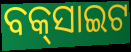
ବକ୍‌ସାଇଟ